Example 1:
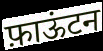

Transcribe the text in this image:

फ़ाऊंटन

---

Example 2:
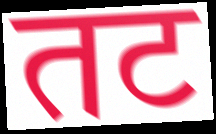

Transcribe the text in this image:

तट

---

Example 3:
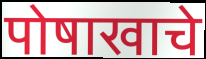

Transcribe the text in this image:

पोषाखाचे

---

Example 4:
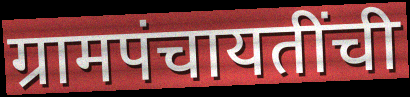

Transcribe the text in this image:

ग्रामपंचायतींची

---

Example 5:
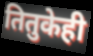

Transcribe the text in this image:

तितुकेही